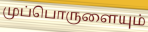
முப்பொருளையும்